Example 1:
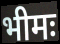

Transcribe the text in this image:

भीमः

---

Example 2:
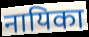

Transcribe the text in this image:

नायिका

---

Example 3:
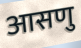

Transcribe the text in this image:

आसणु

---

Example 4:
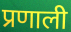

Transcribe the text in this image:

प्रणाली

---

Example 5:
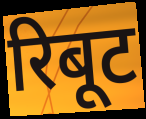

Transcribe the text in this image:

रिबूट